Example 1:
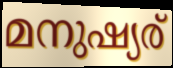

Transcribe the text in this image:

മനുഷ്യര്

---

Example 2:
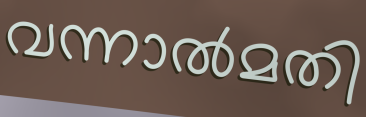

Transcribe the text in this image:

വന്നാൽമതി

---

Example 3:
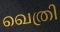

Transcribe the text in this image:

ഖെത്രി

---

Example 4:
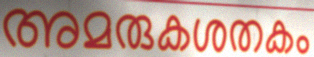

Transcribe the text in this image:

അമരുകശതകം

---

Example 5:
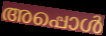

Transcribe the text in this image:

അപ്പൊൾ